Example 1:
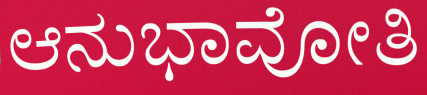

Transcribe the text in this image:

ಆನುಭಾವೋತಿ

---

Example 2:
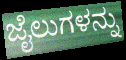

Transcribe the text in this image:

ಜೈಲುಗಳನ್ನು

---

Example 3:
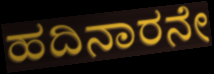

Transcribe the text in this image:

ಹದಿನಾರನೇ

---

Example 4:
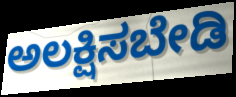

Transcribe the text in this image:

ಅಲಕ್ಷಿಸಬೇಡಿ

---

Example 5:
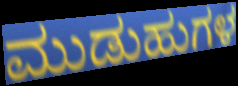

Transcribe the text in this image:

ಮುಡುಹುಗಳ